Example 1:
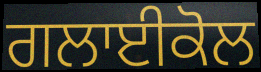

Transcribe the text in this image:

ਗਲਾਈਕੋਲ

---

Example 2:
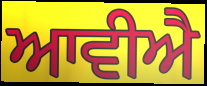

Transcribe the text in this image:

ਆਵੀਐ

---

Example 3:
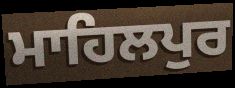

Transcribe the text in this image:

ਮਾਹਿਲਪੁਰ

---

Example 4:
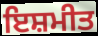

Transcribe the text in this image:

ਇਸ਼ਮੀਤ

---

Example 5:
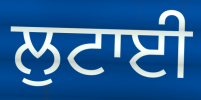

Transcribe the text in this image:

ਲੁਟਾਈ